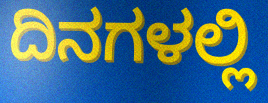
ದಿನಗಳಲ್ಲಿ